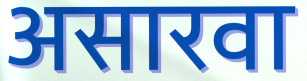
असारवा